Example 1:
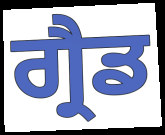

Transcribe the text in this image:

ਗ੍ਰੈਡ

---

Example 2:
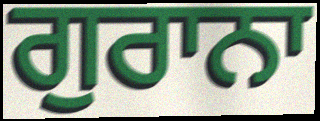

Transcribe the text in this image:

ਗੁਰਾਨਾ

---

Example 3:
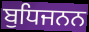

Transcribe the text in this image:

ਬੁਧਿਜਨਨ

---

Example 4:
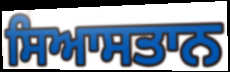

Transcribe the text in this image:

ਸਿਆਸਤਾਨ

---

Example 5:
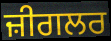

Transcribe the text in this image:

ਜ਼ੀਗਲਰ